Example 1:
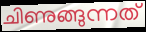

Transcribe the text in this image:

ചിണുങ്ങുന്നത്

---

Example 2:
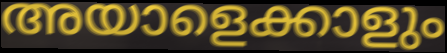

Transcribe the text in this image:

അയാളെക്കാളും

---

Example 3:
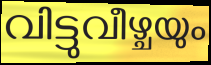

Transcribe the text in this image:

വിട്ടുവീഴ്ചയും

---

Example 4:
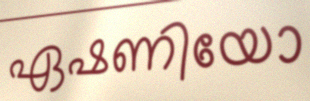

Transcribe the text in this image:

ഏഷണിയോ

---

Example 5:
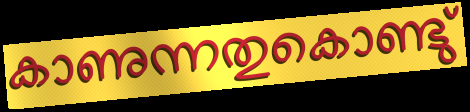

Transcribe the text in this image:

കാണുന്നതുകൊണ്ടു്